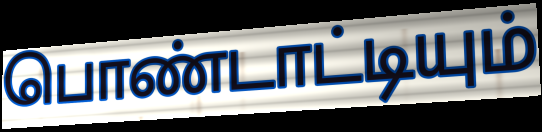
பொண்டாட்டியும்